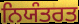
ਨਿਯੰਤਰਤ